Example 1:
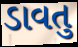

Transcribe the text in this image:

ડાવતુ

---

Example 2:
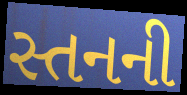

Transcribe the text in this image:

સ્તનની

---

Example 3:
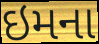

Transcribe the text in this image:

ઇમના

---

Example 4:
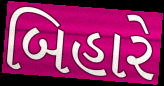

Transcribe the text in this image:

બિહારે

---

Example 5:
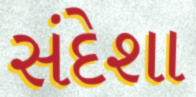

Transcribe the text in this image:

સંદેશા